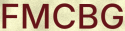
FMCBG